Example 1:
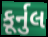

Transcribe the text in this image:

કૂર્નુલ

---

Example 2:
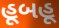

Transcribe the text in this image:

હૂબહૂ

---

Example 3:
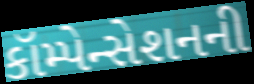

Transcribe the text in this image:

કૉમ્પેન્સેશનની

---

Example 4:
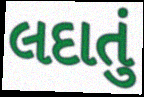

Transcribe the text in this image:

લદાતું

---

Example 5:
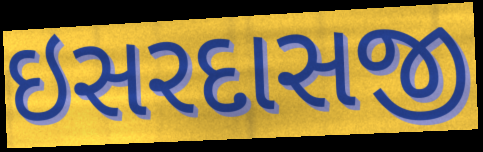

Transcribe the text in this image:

ઇસરદાસજી